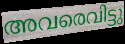
അവരെവിട്ടു